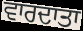
ਵਾਰਦਾਤਾ